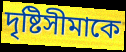
দৃষ্টিসীমাকে